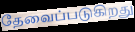
தேவைப்படுகிறது